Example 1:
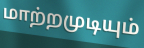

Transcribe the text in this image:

மாற்றமுடியும்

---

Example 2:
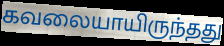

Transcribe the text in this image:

கவலையாயிருந்தது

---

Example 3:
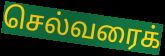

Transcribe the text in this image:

செல்வரைக்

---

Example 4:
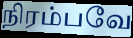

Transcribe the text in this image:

நிரம்பவே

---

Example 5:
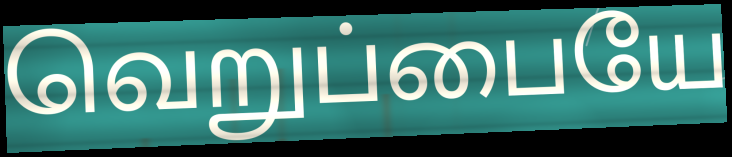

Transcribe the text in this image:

வெறுப்பையே